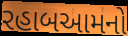
રહાબઆમનો